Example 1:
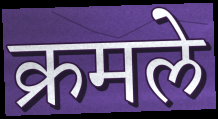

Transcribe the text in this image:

क्रमले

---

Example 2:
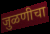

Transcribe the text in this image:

जुळणीचा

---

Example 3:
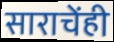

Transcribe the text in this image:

साराचेंही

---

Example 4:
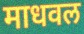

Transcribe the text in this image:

माधवल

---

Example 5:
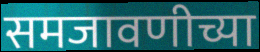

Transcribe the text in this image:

समजावणीच्या